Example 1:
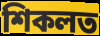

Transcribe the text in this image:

শিকলত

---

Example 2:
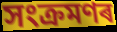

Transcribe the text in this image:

সংক্ৰমণৰ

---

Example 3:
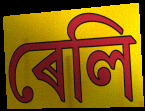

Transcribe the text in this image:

ৰেলি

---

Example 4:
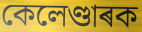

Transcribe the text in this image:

কেলেণ্ডাৰক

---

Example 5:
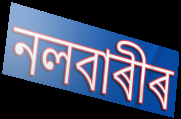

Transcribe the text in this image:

নলবাৰীৰ